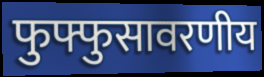
फुफ्फुसावरणीय